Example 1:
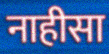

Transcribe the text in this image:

नाहीसा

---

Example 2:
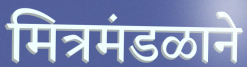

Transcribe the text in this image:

मित्रमंडळाने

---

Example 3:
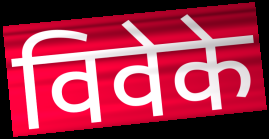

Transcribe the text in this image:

विवेके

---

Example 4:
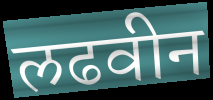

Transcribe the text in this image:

लढवीन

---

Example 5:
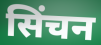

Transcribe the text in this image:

सिंचन